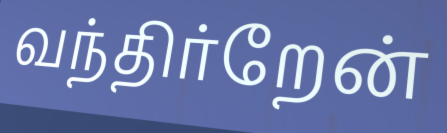
வந்திர்றேன்